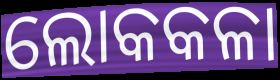
ଲୋକକଳା